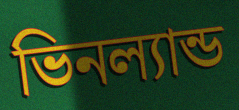
ভিনল্যান্ড